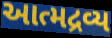
આત્મદ્રવ્ય